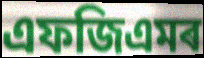
এফজিএমৰ